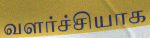
வளர்ச்சியாக